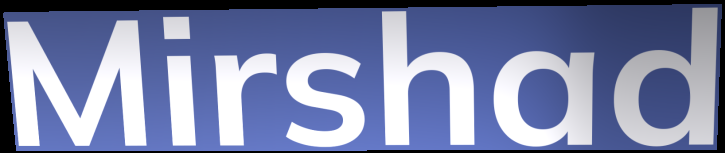
Mirshad